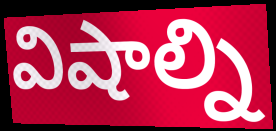
విషాల్ని